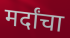
मर्दांचा